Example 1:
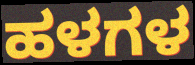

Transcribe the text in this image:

ಹಳಗಳ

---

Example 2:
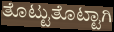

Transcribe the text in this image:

ತೊಟ್ಟುತೊಟ್ಟಾಗಿ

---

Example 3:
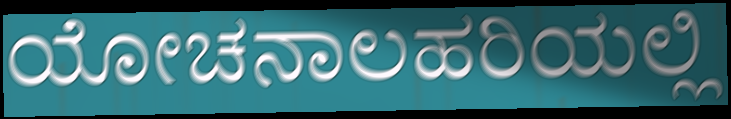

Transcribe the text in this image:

ಯೋಚನಾಲಹರಿಯಲ್ಲಿ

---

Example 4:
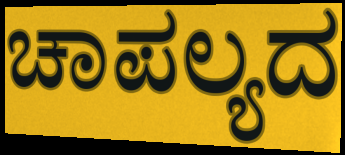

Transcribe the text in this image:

ಚಾಪಲ್ಯದ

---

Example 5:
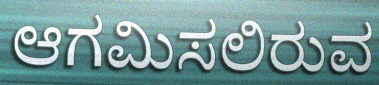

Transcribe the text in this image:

ಆಗಮಿಸಲಿರುವ